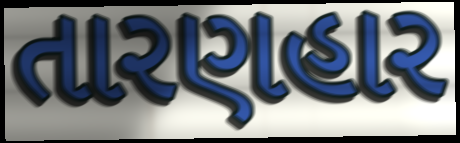
તારણહાર